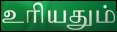
உரியதும்